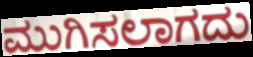
ಮುಗಿಸಲಾಗದು